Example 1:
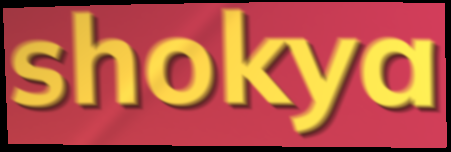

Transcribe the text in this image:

shokya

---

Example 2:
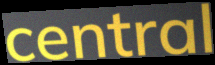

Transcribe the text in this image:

central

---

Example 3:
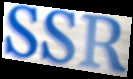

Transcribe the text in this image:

SSR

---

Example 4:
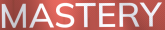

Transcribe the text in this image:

MASTERY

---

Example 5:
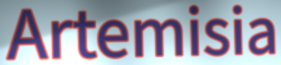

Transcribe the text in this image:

Artemisia